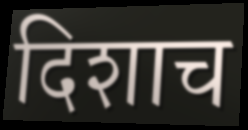
दिशाच